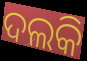
ଦଲକି